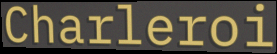
Charleroi